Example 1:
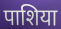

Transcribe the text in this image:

पाशिया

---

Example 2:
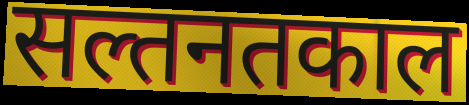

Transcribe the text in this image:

सल्तनतकाल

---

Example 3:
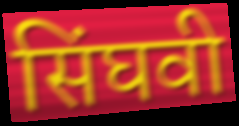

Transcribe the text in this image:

सिंघवी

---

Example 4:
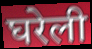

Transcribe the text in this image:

घरेली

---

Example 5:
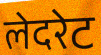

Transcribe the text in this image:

लेदरेट